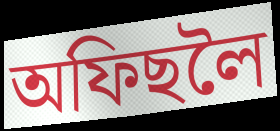
অফিছলৈ